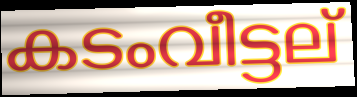
കടംവീട്ടല്